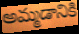
అమ్మడానికి